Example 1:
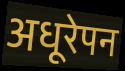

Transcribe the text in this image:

अधूरेपन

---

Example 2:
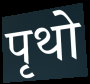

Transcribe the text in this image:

पृथो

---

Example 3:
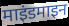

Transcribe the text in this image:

माइंडमाइन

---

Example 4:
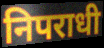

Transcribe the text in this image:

निपराधी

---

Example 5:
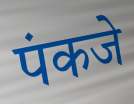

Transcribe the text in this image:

पंकजे